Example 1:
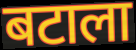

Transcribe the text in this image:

बटाला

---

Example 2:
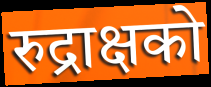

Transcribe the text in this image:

रुद्राक्षको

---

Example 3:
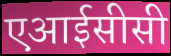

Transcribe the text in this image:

एआईसीसी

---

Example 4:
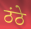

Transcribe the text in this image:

ठंठे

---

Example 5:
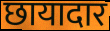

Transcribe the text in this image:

छायादार